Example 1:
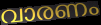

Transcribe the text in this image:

വാരണം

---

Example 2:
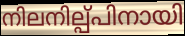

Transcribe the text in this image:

നിലനില്പ്പിനായി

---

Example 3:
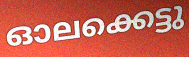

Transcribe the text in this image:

ഓലക്കെട്ടു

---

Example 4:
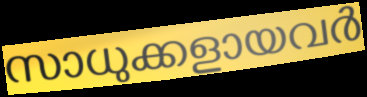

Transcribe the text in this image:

സാധുക്കളായവർ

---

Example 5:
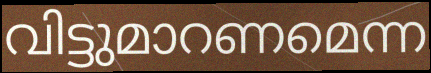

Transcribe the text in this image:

വിട്ടുമാറണമെന്ന